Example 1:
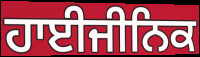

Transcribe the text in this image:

ਹਾਈਜੀਨਿਕ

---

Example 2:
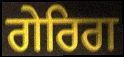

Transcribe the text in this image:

ਗੇਰਿਗ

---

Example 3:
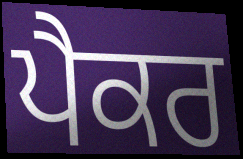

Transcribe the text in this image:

ਪੈਕਰ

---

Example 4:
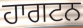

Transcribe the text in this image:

ਹਾਗਟਨ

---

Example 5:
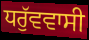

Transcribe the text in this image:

ਧਰੁੱਵਵਾਸੀ